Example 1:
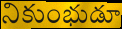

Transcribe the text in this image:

నికుంభుడూ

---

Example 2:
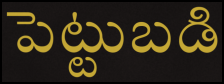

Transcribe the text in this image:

పెట్టుబడి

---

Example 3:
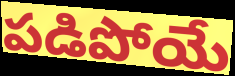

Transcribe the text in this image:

పడిపోయే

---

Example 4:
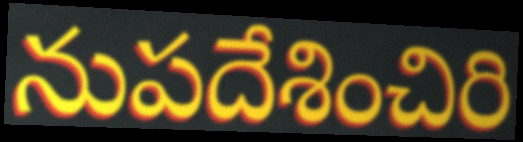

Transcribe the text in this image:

నుపదేశించిరి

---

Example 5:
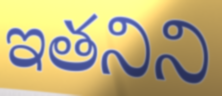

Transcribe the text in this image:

ఇతనిని